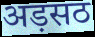
अड़सठ